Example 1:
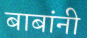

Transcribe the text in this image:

बाबांनी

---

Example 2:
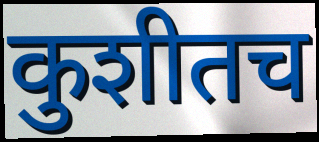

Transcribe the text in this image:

कुशीतच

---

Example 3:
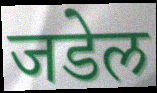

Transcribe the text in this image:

जडेल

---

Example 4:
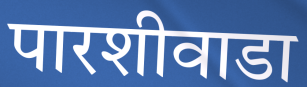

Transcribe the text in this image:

पारशीवाडा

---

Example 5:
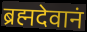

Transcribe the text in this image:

ब्रह्मदेवानं